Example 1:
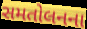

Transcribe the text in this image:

સમતોલનના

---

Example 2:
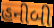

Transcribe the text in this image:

હનીબી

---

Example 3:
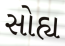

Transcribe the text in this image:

સોહ્ય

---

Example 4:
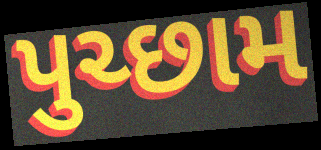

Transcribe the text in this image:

પુચ્છામ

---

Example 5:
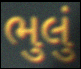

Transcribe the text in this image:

ભુલું